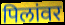
पिलांवर